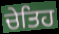
ਚੇਤਿਹ